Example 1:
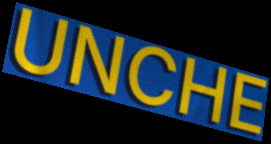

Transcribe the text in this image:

UNCHE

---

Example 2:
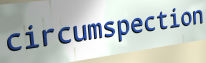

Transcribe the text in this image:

circumspection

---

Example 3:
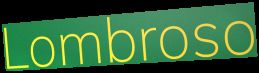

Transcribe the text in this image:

Lombroso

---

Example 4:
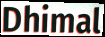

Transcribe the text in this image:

Dhimal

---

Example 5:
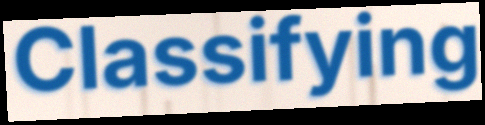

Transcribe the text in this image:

Classifying